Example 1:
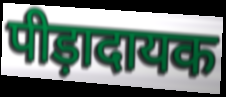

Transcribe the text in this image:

पीड़ादायक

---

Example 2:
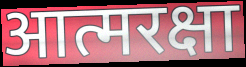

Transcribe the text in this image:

आत्मरक्षा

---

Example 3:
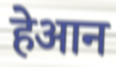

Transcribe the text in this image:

हेआन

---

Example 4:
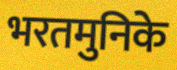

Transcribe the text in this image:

भरतमुनिके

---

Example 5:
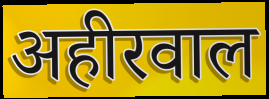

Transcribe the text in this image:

अहीरवाल